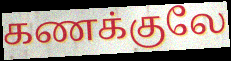
கணக்குலே